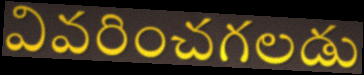
వివరించగలడు